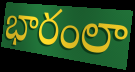
భారంలా